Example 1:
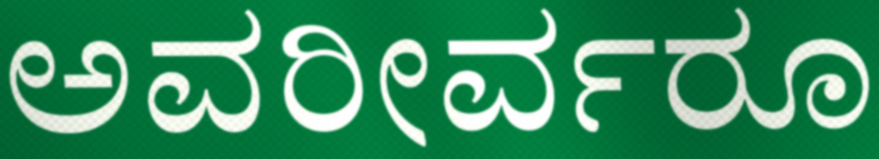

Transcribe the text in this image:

ಅವರೀರ್ವರೂ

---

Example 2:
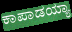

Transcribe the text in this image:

ಕಾಪಾಡಯ್ಯಾ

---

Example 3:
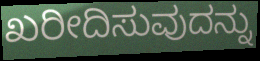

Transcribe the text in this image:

ಖರೀದಿಸುವುದನ್ನು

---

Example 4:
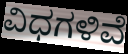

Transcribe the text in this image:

ವಿಧಗಳಿವೆ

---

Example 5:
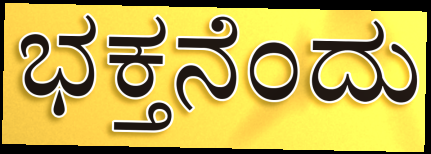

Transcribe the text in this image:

ಭಕ್ತನೆಂದು